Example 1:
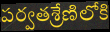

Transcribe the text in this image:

పర్వతశ్రేణిలోకి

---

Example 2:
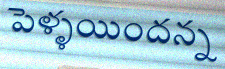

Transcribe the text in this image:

పెళ్ళయిందన్న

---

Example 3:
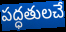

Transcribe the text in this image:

పద్ధతులచే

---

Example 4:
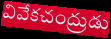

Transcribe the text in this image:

వివేకచంద్రుడు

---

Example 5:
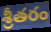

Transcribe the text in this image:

శ్రీతరం